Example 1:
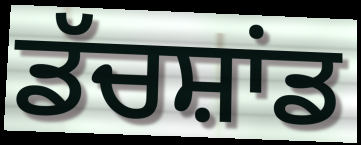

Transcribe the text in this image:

ਡੱਚਸ਼ਾਂਡ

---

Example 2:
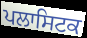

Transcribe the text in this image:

ਪਲਾਸਿਟਕ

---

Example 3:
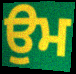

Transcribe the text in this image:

ਉਮ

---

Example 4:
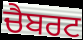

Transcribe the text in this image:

ਚੈਬਰਟ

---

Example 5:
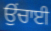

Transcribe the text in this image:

ਉਂਚਾਈ